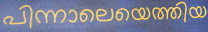
പിന്നാലെയെത്തിയ